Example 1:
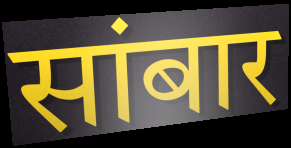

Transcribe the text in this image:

सांबार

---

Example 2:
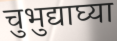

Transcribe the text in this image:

चुभुद्याघ्या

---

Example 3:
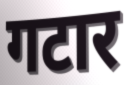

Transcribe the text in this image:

गटार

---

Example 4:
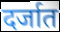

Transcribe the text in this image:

दर्जात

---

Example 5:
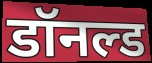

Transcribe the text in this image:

डॉनल्ड